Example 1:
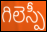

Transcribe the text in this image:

గిలెస్పీ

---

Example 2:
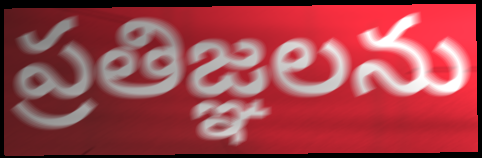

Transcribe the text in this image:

ప్రతిజ్ఞలను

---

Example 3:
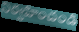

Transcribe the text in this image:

నిర్వహించండి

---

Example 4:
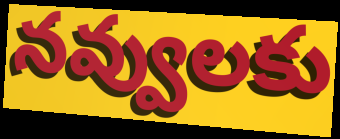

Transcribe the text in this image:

నవ్వులకు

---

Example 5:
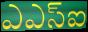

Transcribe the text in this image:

ఎఎస్ఐ